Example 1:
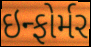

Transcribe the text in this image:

ઇન્ફોર્મર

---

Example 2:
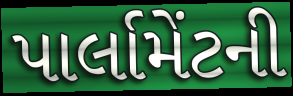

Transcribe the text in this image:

પાર્લામેંટની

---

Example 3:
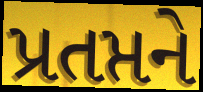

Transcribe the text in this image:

પ્રતપ્તને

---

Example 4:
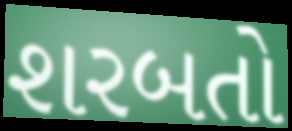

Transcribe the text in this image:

શરબતો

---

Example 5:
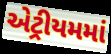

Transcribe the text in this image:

એટ્રીયમમાં